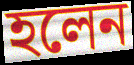
হলেন